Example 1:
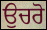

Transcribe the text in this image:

ਉਚਰੋ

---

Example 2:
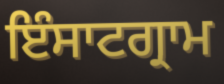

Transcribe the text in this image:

ਇੰਸਾਟਗ੍ਰਾਮ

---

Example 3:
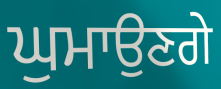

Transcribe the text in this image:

ਘੁਮਾਉਣਗੇ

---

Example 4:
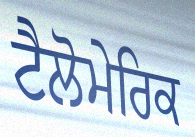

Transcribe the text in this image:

ਟੈਲੋਮੇਰਿਕ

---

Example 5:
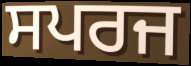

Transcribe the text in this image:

ਸਪਰਜ